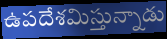
ఉపదేశమిస్తున్నాడు